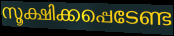
സൂക്ഷിക്കപ്പെടേണ്ട